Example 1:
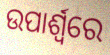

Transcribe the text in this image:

ଉପାର୍ଶ୍ଵରେ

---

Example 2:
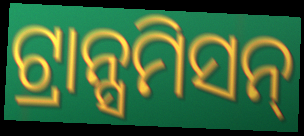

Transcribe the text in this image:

ଟ୍ରାନ୍ସମିସନ୍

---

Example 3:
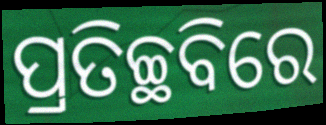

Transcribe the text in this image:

ପ୍ରତିଚ୍ଛବିରେ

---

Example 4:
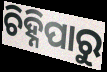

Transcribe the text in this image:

ଚିହ୍ନିପାରୁ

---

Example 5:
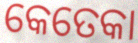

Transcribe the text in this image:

କେତେକା